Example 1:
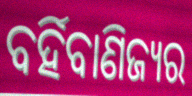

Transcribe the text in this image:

ବର୍ହିବାଣିଜ୍ୟର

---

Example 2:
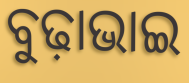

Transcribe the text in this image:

ବୁଢ଼ାଭାଇ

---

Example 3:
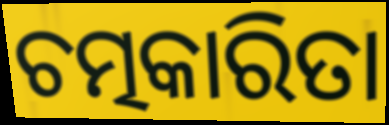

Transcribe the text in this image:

ଚତ୍ମକାରିତା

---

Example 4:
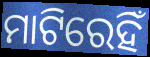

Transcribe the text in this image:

ମାଟିରେହିଁ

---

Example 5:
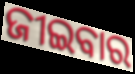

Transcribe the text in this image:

ଜୀଇବାର